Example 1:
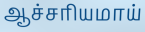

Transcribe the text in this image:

ஆச்சரியமாய்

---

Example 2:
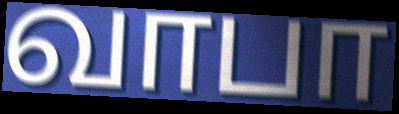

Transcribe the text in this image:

வாபா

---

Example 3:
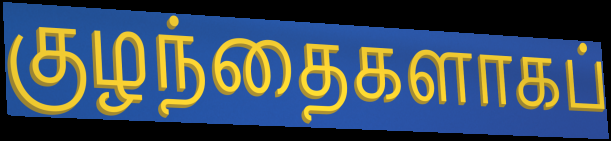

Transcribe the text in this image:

குழந்தைகளாகப்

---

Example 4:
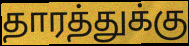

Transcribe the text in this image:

தாரத்துக்கு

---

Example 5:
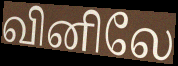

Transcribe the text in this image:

வினிலே